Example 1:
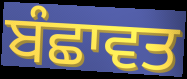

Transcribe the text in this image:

ਬੰਛਾਵਤ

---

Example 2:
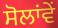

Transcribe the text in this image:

ਸੋਲਾਂਵੇਂ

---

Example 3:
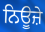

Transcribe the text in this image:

ਨਿਊਜ਼ੇ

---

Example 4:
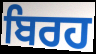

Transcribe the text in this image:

ਬਿਰਹ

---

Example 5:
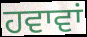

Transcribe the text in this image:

ਹਵਾਵਾਂ